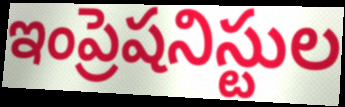
ఇంప్రెషనిస్టుల